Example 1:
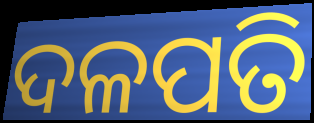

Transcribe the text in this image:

ଦଳପତି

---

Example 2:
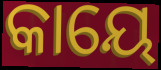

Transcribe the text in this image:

କାୟେ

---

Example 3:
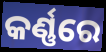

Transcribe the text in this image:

କର୍ଣ୍ଣରେ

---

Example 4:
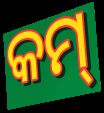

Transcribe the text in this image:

କମ୍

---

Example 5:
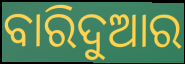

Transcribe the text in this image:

ବାରିଦୁଆର